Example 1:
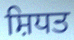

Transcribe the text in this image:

ਸ਼ਿਧਤ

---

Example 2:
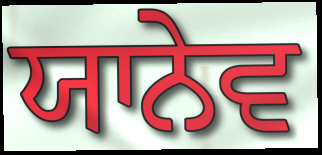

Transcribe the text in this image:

ਯਾਨੇਵ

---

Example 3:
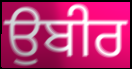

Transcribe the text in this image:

ਉਬੀਰ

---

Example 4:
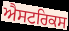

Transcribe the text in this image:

ਐਸਟਰਿਕਸ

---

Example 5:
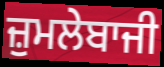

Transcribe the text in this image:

ਜ਼ੁਮਲੇਬਾਜੀ